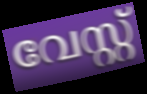
വേസ്റ്റ്